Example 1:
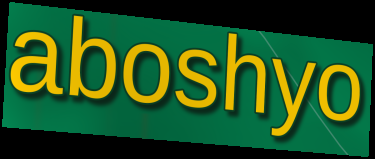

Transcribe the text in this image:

aboshyo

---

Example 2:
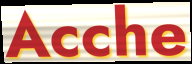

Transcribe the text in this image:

Acche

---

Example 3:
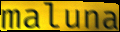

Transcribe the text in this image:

maluna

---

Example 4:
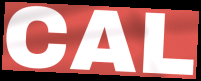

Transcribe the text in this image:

CAL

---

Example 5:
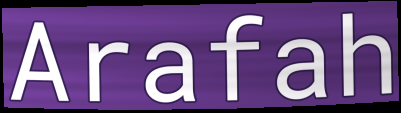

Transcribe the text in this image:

Arafah